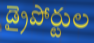
డ్రైపోర్టుల